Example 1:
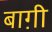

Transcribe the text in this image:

बाग़ी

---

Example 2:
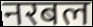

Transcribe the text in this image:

नरबल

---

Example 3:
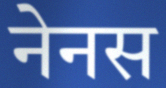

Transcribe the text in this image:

नेनस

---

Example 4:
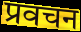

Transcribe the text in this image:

प्रवचन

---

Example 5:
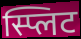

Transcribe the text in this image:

स्प्लिट